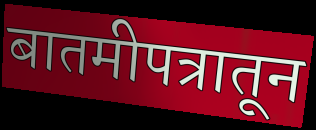
बातमीपत्रातून